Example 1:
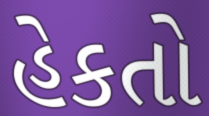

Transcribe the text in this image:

હેકતો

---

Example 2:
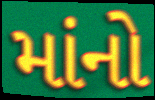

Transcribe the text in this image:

માંનો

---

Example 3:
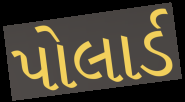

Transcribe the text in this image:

પોલાર્ડ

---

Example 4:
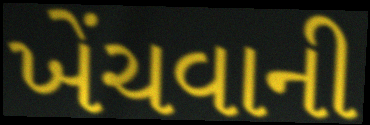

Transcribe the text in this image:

ખેંચવાની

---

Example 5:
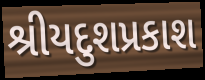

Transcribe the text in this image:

શ્રીયદુશપ્રકાશ